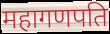
महागणपति